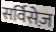
सर्विसेज़